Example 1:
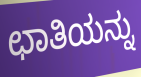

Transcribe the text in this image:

ಛಾತಿಯನ್ನು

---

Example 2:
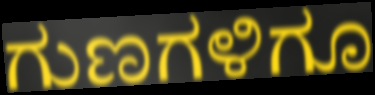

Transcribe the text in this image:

ಗುಣಗಳಿಗೂ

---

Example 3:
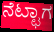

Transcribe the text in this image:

ನೆಟ್ಟಾಗ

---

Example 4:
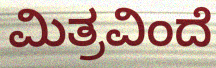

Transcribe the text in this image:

ಮಿತ್ರವಿಂದೆ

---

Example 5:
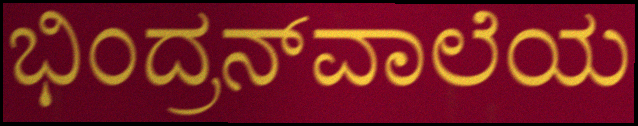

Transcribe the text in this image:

ಭಿಂದ್ರನ್‌ವಾಲೆಯ